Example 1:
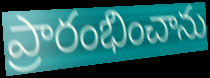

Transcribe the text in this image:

ప్రారంభించాను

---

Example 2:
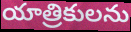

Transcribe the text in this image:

యాత్రికులను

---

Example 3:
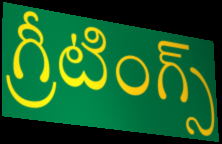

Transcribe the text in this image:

గ్రీటింగ్స్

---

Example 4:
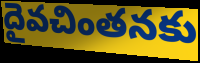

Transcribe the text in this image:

దైవచింతనకు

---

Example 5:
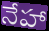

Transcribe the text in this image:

నేహా